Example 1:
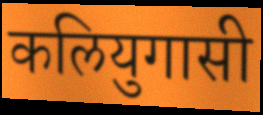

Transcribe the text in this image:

कलियुगासी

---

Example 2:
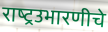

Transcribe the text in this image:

राष्ट्रउभारणीचे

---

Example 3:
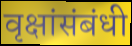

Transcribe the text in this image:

वृक्षांसंबंधी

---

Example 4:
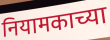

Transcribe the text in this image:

नियामकाच्या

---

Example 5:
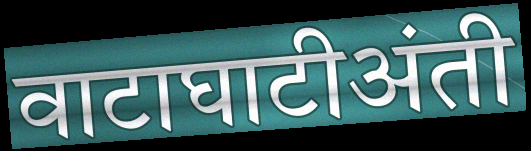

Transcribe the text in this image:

वाटाघाटीअंती